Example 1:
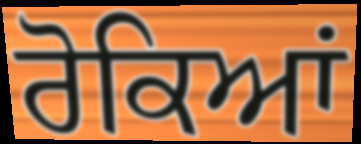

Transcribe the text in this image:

ਰੋਕਿਆਂ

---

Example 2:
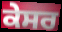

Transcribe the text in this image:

ਕੇਸਰ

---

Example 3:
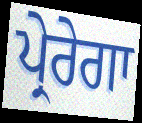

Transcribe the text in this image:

ਪ੍ਰੇਰੇਗਾ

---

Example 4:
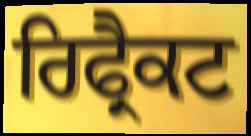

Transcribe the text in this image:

ਰਿਫ੍ਰੈਕਟ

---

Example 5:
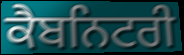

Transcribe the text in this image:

ਕੈਬਨਿਟਰੀ